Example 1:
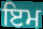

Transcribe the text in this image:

ਇਮ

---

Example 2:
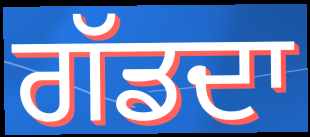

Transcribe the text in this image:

ਗੱਡਦਾ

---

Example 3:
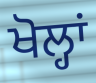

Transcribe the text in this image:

ਖੋਲ੍ਹਾਂ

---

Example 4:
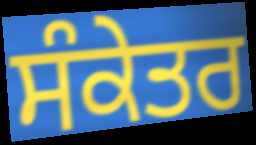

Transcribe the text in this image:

ਸੰਕੇਤਰ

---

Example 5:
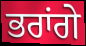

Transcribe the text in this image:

ਭਰਾਂਗੇ